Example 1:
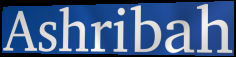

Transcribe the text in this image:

Ashribah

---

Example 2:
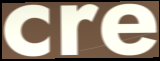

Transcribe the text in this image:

cre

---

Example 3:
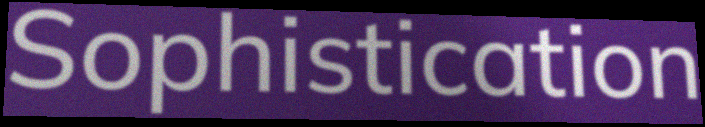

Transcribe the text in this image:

Sophistication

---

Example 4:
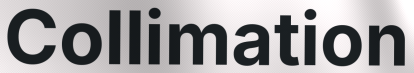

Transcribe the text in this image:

Collimation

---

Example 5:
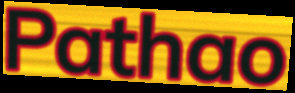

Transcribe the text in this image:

Pathao